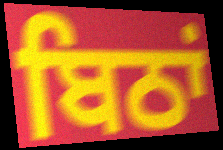
ਬਿਠਾਂ